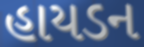
હાયડન